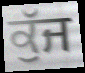
ਕੁੱਜ